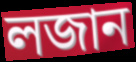
লজান